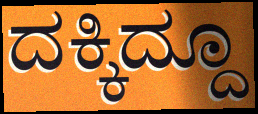
ದಕ್ಕಿದ್ದೂ